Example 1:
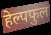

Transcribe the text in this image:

हेल्पफुल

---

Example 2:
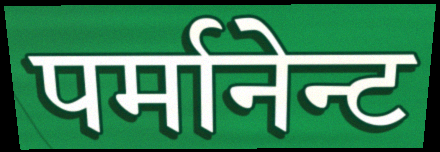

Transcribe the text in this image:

पर्मानेन्ट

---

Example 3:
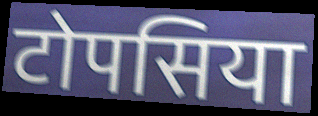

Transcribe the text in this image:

टोपसिया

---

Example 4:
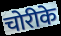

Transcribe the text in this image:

चोरीके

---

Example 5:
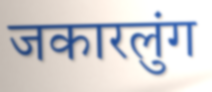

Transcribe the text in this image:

जकारलुंग